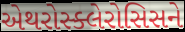
એથરોસ્ક્લેરોસિસને